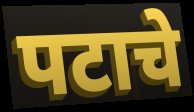
पटाचे